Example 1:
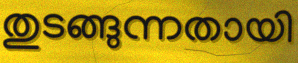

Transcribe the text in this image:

തുടങ്ങുന്നതായി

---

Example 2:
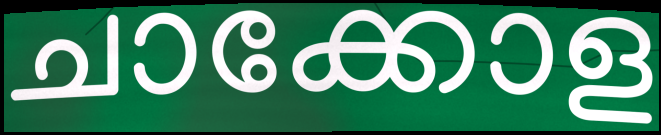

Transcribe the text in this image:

ചാക്കോള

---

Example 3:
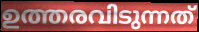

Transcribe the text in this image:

ഉത്തരവിടുന്നത്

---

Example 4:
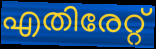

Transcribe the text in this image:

എതിരേറ്റ്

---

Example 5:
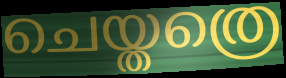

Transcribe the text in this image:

ചെയ്തത്രെ